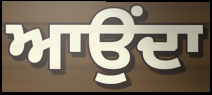
ਆਉਂਦਾ